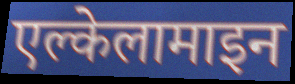
एल्केलामाइन